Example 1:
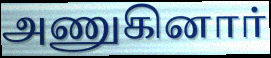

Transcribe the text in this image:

அணுகினார்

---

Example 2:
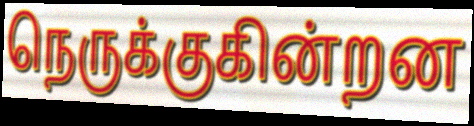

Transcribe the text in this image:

நெருக்குகின்றன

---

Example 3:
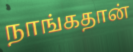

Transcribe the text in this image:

நாங்கதான்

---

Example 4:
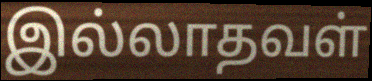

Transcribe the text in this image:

இல்லாதவள்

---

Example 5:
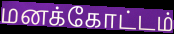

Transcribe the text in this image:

மனக்கோட்டம்